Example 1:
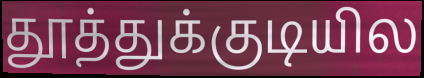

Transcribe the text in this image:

தூத்துக்குடியில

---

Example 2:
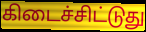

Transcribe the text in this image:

கிடைச்சிட்டுது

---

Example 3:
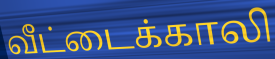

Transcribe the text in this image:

வீட்டைக்காலி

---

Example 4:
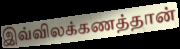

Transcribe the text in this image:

இவ்விலக்கணத்தான்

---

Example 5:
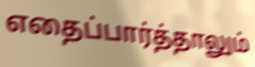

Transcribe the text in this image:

எதைப்பார்த்தாலும்